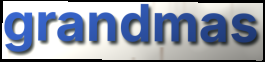
grandmas